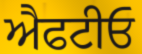
ਐਫਟੀਓ